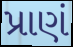
પ્રાણં